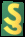
ડુ